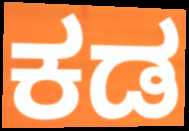
ಕಡ